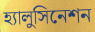
হ্যালুসিনেশন